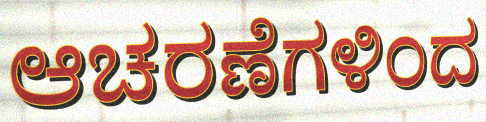
ಆಚರಣೆಗಳಿಂದ